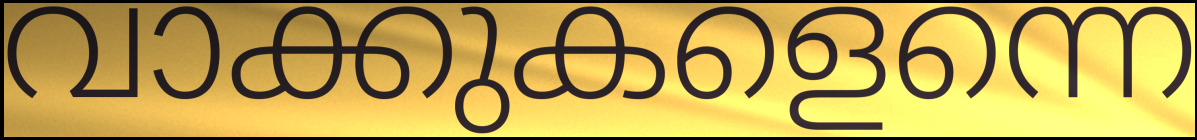
വാക്കുകളെന്നെ